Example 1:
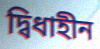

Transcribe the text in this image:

দ্বিধাহীন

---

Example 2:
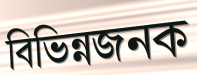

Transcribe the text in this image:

বিভিন্নজনক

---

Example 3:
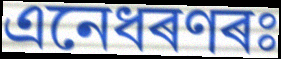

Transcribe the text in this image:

এনেধৰণৰঃ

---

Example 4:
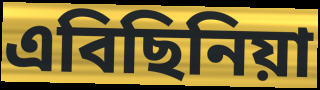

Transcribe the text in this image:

এবিছিনিয়া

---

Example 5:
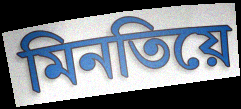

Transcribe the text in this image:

মিনতিয়ে